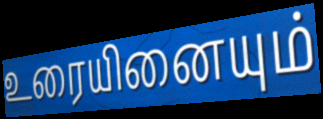
உரையினையும்